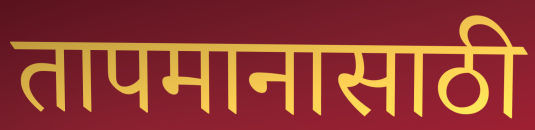
तापमानासाठी